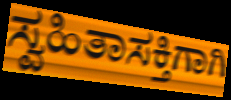
ಸ್ವಹಿತಾಸಕ್ತಿಗಾಗಿ